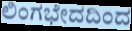
ಲಿಂಗಭೇದದಿಂದ